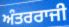
ਅੰਤਰਰਾਜੀ